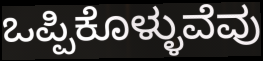
ಒಪ್ಪಿಕೊಳ್ಳುವೆವು